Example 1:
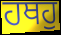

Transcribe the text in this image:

ਹਥਹੁ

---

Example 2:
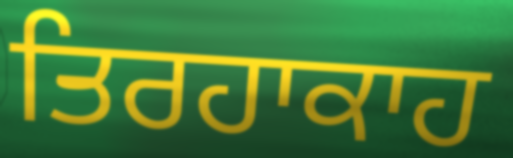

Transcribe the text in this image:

ਤਿਰਹਾਕਾਹ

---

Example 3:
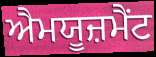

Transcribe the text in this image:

ਐਮਯੂਜ਼ਮੈਂਟ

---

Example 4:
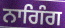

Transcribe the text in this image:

ਨਾਗਿੰਗ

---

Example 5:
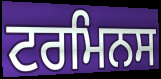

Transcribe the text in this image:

ਟਰਮਿਨਸ